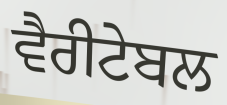
ਵੈਰੀਟੇਬਲ